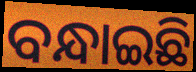
ବନ୍ଧାଇଛି